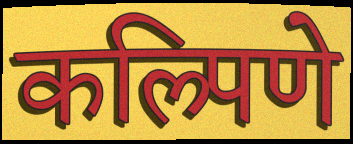
कल्पिणे